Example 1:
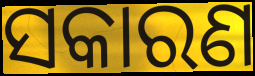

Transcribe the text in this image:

ସକାରଣ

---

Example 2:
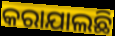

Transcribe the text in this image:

କରାଯାଲଛି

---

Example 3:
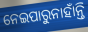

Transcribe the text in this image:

ନେଇପାରୁନାହାଁନ୍ତି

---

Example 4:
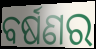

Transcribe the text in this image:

ବର୍ଷଣର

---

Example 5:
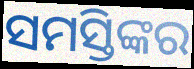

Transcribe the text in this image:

ସମସ୍ତିଙ୍କର